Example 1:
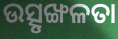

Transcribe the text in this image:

ଉତ୍ସୃଙ୍ଖଳତା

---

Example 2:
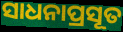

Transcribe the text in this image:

ସାଧନାପ୍ରସୂତ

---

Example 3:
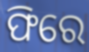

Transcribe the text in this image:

ଫିରେ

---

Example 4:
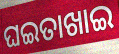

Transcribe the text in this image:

ଘଇତାଖାଇ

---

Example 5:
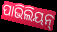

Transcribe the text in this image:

ପାଭିଲିୟନ୍